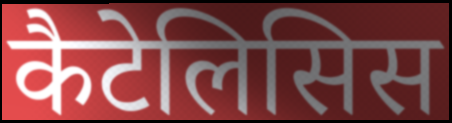
कैटेलिसिस